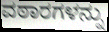
ವಠಾರಗಳನ್ನು